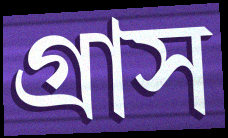
গ্রাস